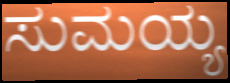
ಸುಮಯ್ಯ